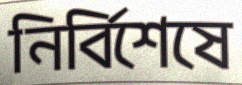
নির্বিশেষে